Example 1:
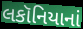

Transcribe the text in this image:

લકૉનિયાનાં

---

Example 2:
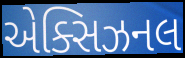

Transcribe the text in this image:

એક્સિઝનલ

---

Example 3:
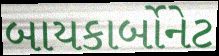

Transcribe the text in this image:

બાયકાર્બોનેટ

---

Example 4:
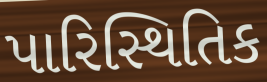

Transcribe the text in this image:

પારિસ્થિતિક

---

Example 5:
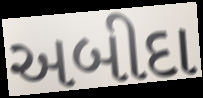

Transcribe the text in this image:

અબીદા